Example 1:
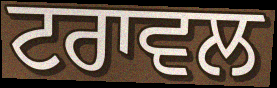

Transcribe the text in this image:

ਟਰਾਵਲ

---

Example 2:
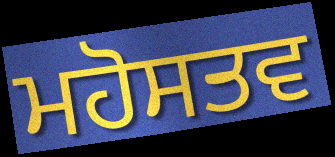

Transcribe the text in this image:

ਮਹੋਸਤਵ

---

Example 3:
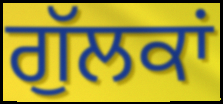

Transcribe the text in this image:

ਗੁੱਲਕਾਂ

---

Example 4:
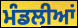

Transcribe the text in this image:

ਮੰਡਲੀਆਂ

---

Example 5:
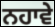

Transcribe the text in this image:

ਨਹਾਵੇ